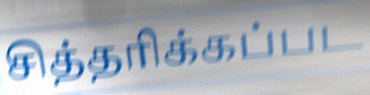
சித்தரிக்கப்பட